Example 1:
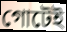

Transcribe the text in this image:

গোটেই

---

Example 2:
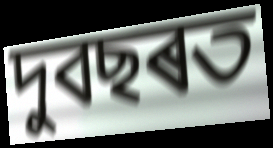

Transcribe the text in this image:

দুবছৰত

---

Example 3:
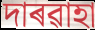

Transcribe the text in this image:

দাৰৱাহা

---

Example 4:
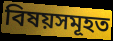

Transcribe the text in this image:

বিষয়সমূহত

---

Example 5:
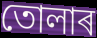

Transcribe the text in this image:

তোলাৰ